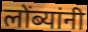
लोंब्यांनी